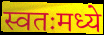
स्वतःमध्ये